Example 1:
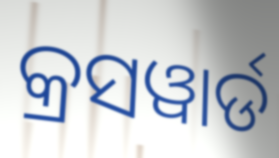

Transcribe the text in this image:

କ୍ରସୱାର୍ଡ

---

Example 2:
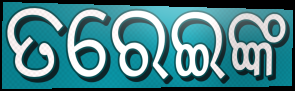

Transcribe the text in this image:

ତରେଇଙ୍କ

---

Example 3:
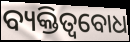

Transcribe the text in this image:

ବ୍ୟକ୍ତିତ୍ୱବୋଧ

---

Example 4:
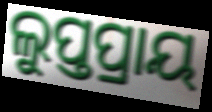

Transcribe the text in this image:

ଲୁପ୍ତପ୍ରାୟ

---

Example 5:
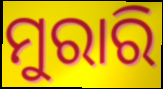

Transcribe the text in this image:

ମୁରାରି